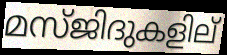
മസ്ജിദുകളില്